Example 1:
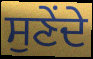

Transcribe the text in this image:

ਸੁਣੇਂਦੇ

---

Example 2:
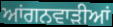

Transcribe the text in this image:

ਆਂਗਨਵਾੜੀਆਂ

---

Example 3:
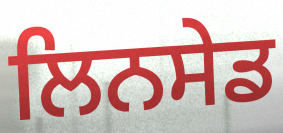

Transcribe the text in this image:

ਲਿਨਸੇਡ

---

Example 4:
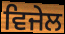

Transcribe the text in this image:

ਵਿਜੇਲ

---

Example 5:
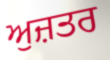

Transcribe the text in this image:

ਅੁਜ਼ਤਰ